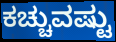
ಕಚ್ಚುವಷ್ಟು